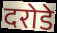
दरोडे